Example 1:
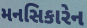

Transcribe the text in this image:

મનસિકારેન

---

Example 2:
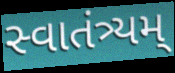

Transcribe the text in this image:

સ્વાતંત્ર્યમ્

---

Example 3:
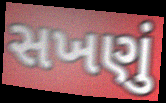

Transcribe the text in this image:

સખણું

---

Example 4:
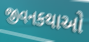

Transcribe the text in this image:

જીવનકથાઓ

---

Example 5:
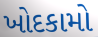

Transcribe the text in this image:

ખોદકામો